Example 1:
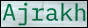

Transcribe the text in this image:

Ajrakh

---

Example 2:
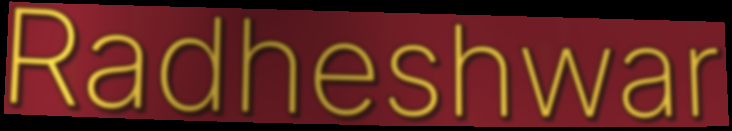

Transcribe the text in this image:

Radheshwar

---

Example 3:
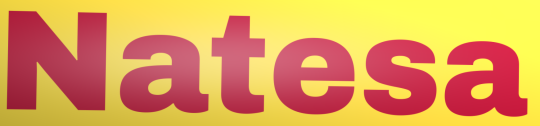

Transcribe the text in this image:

Natesa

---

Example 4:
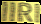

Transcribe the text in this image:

IIRI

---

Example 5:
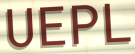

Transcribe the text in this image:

UEPL